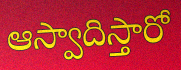
ఆస్వాదిస్తారో